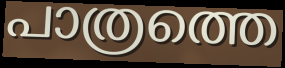
പാത്രത്തെ